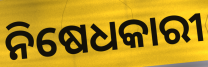
ନିଷେଧକାରୀ